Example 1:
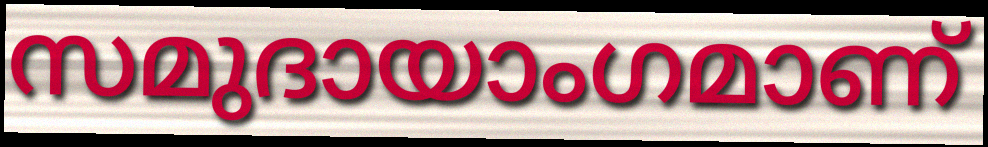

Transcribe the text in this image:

സമുദായാംഗമാണ്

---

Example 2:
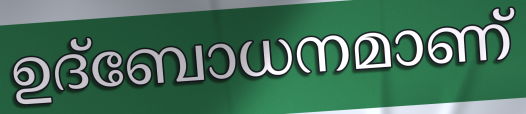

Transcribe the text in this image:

ഉദ്ബോധനമാണ്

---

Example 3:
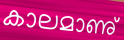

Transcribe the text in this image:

കാലമാണു്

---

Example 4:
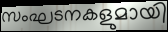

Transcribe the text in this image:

സംഘടനകളുമായി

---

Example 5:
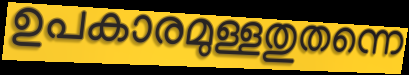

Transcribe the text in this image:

ഉപകാരമുള്ളതുതന്നെ